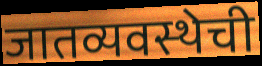
जातव्यवस्थेची